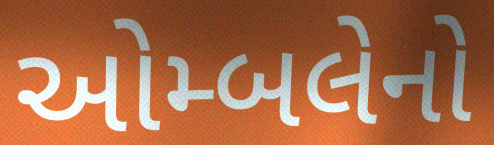
ઓમ્બલેનો